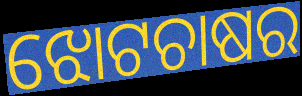
ଝୋଟଚାଷର